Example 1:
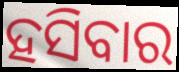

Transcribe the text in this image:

ହସିବାର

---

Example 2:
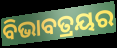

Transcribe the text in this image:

ବିଭାବତ୍ରୟର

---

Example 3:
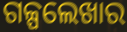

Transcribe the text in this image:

ଗଳ୍ପଲେଖାର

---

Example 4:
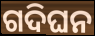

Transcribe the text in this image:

ଗଦିଘନ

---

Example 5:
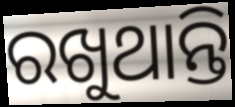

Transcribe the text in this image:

ରଖୁଥାନ୍ତି